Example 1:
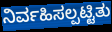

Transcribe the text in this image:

ನಿರ್ವಹಿಸಲ್ಪಟ್ಟಿತು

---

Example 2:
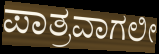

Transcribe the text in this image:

ಪಾತ್ರವಾಗಲೀ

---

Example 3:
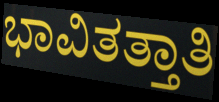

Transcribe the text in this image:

ಭಾವಿತತ್ತಾತಿ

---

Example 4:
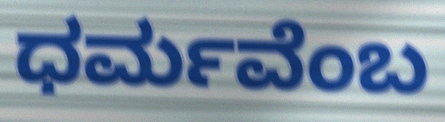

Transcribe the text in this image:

ಧರ್ಮವೆಂಬ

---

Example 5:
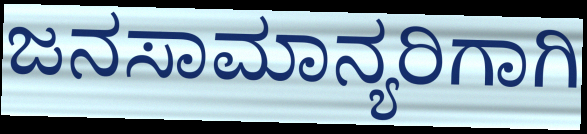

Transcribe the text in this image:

ಜನಸಾಮಾನ್ಯರಿಗಾಗಿ